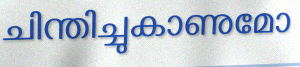
ചിന്തിച്ചുകാണുമോ